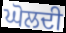
ਘੋਲਦੀ